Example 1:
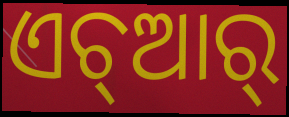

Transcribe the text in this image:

ଏଚ୍ଆର୍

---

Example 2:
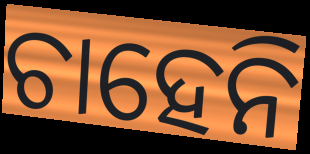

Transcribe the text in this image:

ଚାହେନି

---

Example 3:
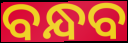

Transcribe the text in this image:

ବନ୍ଧବ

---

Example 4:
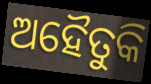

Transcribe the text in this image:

ଅହୈତୁକି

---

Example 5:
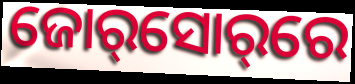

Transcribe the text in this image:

ଜୋର୍‌ସୋର୍‌ରେ